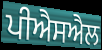
ਪੀਐਸਐਲ